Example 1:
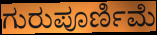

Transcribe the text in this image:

ಗುರುಪೂರ್ಣಿಮೆ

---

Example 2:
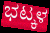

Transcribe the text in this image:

ಭಟ್ಕಳ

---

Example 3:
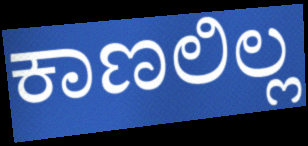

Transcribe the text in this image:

ಕಾಣಲಿಲ್ಲ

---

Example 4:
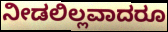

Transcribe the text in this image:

ನೀಡಲಿಲ್ಲವಾದರೂ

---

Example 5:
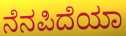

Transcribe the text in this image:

ನೆನಪಿದೆಯಾ